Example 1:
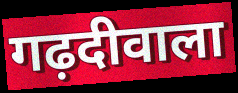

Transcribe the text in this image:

गढ़दीवाला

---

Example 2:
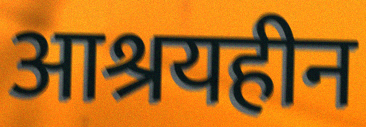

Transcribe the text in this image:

आश्रयहीन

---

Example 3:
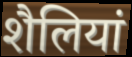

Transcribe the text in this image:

शैलियां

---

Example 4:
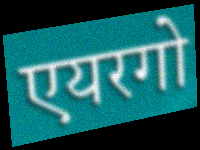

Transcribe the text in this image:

एयरगो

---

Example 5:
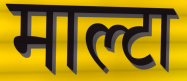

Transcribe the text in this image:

माल्टा